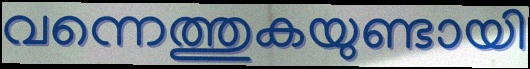
വന്നെത്തുകയുണ്ടായി